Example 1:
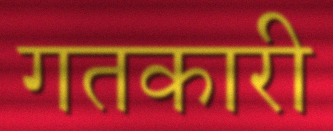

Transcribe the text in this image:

गतकारी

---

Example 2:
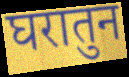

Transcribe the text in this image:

घरातुन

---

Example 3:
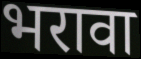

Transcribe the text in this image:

भरावा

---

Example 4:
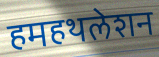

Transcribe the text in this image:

हमहथलेशन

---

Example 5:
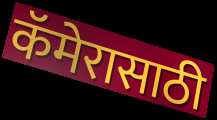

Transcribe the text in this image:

कॅमेरासाठी